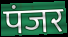
पंजर